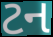
ટન